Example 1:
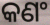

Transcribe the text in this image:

କଣଂ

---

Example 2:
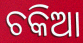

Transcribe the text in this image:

ଚକିଆ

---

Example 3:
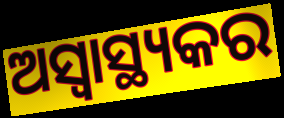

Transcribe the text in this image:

ଅସ୍ବାସ୍ଥ୍ୟକର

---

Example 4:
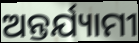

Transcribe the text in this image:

ଅନ୍ତର୍ଯ୍ୟାମୀ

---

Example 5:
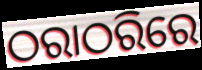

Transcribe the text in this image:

ଠରାଠରିରେ